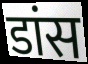
डांस